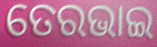
ତେରଭାଇ